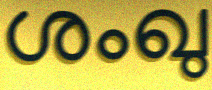
ശംഖു